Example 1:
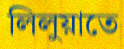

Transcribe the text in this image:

লিলুয়াতে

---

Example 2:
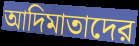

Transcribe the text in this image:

আদিমাতাদের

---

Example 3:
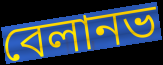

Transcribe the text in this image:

বেলানভ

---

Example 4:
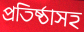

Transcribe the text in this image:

প্রতিষ্ঠাসহ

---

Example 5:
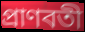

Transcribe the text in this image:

প্রাণবতী